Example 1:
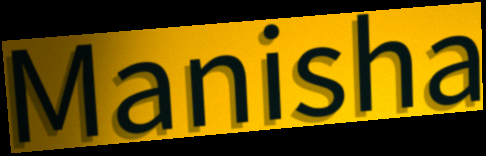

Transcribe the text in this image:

Manisha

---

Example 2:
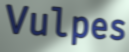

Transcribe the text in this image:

Vulpes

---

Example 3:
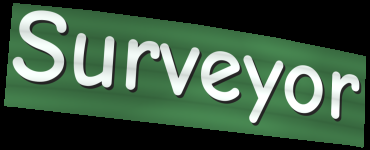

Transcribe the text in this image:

Surveyor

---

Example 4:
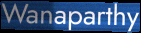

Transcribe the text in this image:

Wanaparthy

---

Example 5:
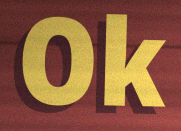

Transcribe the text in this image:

Ok